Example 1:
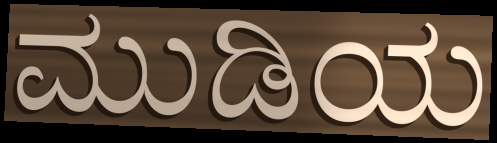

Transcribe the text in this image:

ಮುಡಿಯ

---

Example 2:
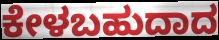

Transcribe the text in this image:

ಕೇಳಬಹುದಾದ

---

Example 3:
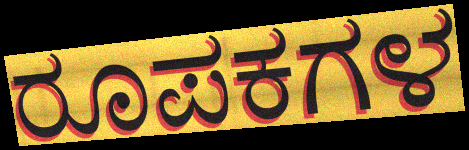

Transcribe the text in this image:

ರೂಪಕಗಳ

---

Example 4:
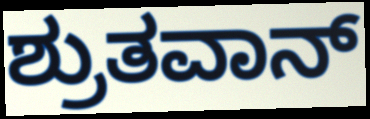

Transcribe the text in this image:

ಶ್ರುತವಾನ್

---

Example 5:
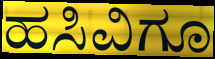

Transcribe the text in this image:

ಹಸಿವಿಗೂ